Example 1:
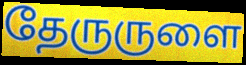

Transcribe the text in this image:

தேருருளை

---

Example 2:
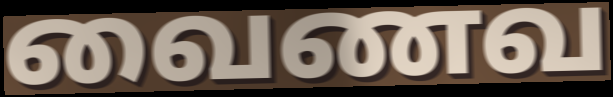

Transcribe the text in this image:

வைணவ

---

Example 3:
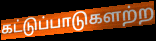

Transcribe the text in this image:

கட்டுப்பாடுகளற்ற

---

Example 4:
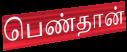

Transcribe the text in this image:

பெண்தான்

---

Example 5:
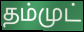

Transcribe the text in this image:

தம்முட்